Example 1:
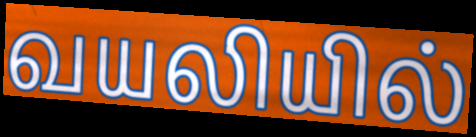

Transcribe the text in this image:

வயலியில்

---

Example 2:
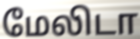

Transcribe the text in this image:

மேலிடா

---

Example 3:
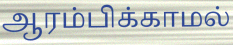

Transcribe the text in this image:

ஆரம்பிக்காமல்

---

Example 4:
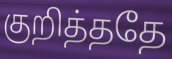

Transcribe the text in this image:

குறித்ததே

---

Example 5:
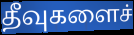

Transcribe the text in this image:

தீவுகளைச்